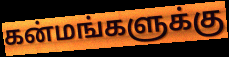
கன்மங்களுக்கு